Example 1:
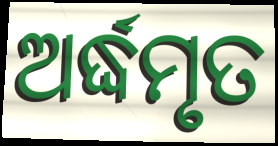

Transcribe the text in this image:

ଅର୍ଦ୍ଧମୃତ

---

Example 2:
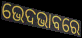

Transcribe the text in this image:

ଭେଦଭାବରେ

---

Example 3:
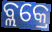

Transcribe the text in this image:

ବ୍ଲକ୍ରେ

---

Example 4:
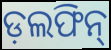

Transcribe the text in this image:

ଡ଼ଲଫିନ୍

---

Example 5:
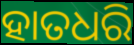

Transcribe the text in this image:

ହାତଧରି